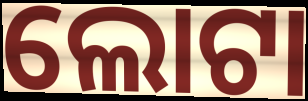
ଲୋଟା